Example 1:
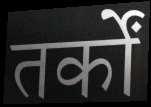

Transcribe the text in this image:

तर्कों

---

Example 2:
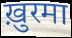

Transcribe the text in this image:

ख़ुरमा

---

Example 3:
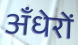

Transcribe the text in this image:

अँधेरों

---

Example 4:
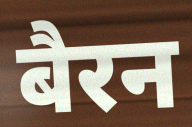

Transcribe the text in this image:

बैरन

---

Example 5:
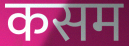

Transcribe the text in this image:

कसम